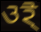
ওই্